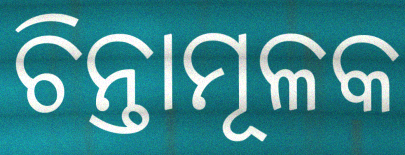
ଚିନ୍ତାମୂଳକ